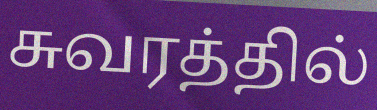
சுவரத்தில்